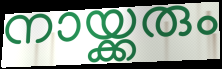
നായ്ക്കരും